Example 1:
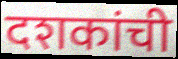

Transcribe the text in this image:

दशकांची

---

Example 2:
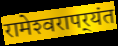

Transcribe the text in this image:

रामेश्वरापर्यंत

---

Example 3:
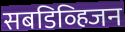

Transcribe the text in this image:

सबडिव्हिजन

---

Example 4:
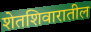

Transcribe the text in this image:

शेतशिवारातील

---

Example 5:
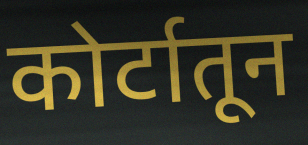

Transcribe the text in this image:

कोर्टातून